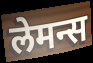
लेमन्स